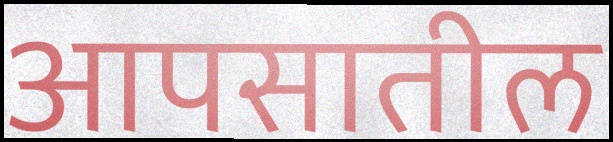
आपसातील